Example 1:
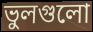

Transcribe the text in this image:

ভুলগুলো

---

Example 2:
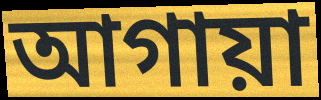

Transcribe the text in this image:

আগায়া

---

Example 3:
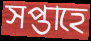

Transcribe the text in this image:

সপ্তাহে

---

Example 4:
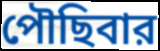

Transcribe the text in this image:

পৌছিবার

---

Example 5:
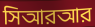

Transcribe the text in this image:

সিআরআর